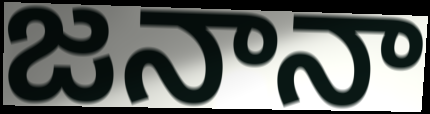
జనానా